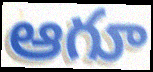
ఆగూ